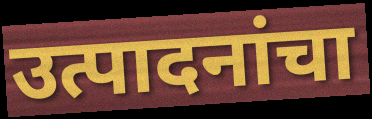
उत्पादनांचा